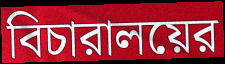
বিচারালয়ের